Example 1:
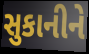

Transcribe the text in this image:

સુકાનીને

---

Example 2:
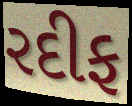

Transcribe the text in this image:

રદીફ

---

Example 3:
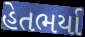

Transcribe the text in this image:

હેતભર્યા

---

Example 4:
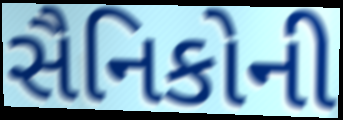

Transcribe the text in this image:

સૈનિકોની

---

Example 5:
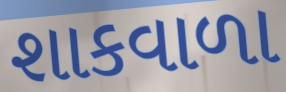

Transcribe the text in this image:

શાકવાળા